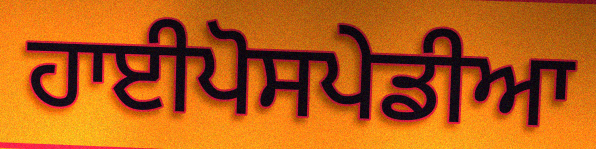
ਹਾਈਪੋਸਪੇਡੀਆ